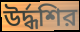
উর্দ্ধশির